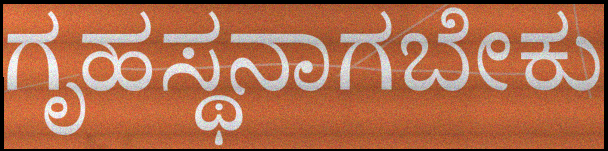
ಗೃಹಸ್ಥನಾಗಬೇಕು